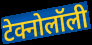
टेक्नोलॉली